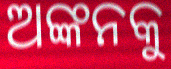
ଅଙ୍କନକୁ